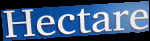
Hectare